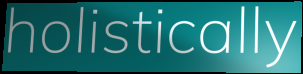
holistically